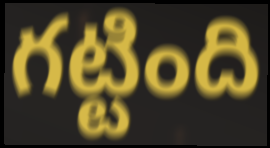
గట్టింది